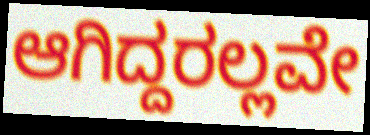
ಆಗಿದ್ದರಲ್ಲವೇ